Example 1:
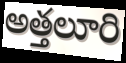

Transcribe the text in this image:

అత్తలూరి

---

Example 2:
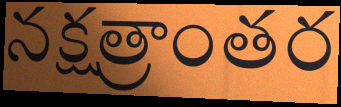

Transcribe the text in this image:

నక్షత్రాంతర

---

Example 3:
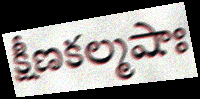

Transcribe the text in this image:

క్షీణకల్మషాః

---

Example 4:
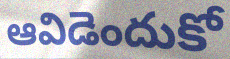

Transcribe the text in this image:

ఆవిడెందుకో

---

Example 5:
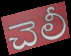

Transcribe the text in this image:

చెలీ